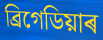
ব্ৰিগেডিয়াৰ